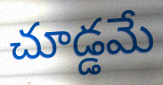
చూడ్డమే